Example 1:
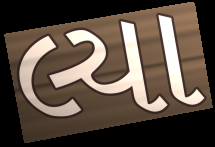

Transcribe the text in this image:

લ્યા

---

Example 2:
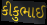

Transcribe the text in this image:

કીકુભાઈ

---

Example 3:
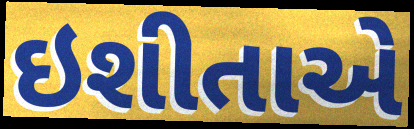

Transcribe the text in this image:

ઇશીતાએ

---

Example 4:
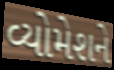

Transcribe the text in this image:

વ્યોમેશને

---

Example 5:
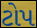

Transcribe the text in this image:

ટોપ